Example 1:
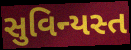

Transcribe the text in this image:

સુવિન્યસ્ત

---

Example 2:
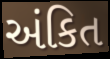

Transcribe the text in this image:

અંકિત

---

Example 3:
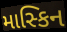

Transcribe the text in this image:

માસ્કિન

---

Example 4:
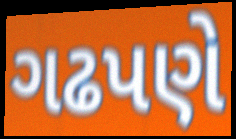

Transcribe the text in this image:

ગઢપણે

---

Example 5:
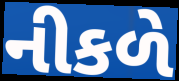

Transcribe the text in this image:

નીકળે